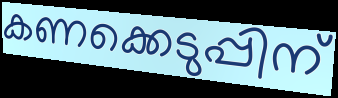
കണക്കെടുപ്പിന്